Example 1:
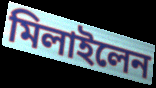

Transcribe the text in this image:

মিলাইলেন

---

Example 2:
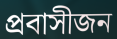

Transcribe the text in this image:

প্রবাসীজন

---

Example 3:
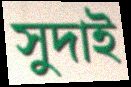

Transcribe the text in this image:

সুদাই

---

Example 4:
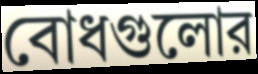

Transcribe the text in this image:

বোধগুলোর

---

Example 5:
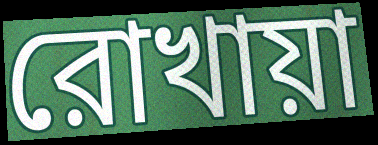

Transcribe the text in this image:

রোখায়া